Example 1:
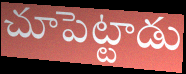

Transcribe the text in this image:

చూపెట్టాడు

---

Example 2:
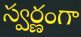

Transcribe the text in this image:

స్వర్ణంగా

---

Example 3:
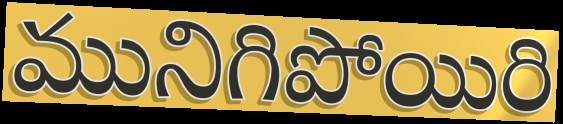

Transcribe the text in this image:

మునిగిపోయిరి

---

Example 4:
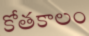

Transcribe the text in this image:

కోతకాలం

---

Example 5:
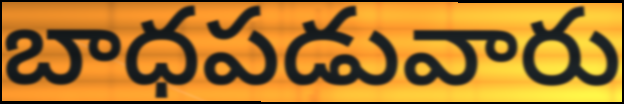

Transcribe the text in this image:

బాధపడువారు